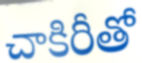
చాకిరీతో